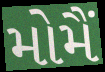
મોમૈં